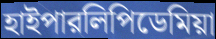
হাইপারলিপিডেমিয়া